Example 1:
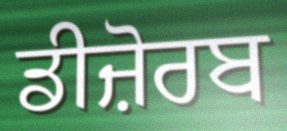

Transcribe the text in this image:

ਡੀਜ਼ੋਰਬ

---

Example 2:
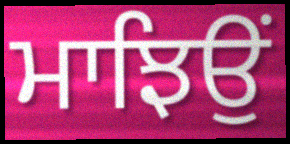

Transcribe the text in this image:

ਮਾਝਿਉਂ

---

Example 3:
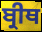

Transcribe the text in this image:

ਬ੍ਰੀਥ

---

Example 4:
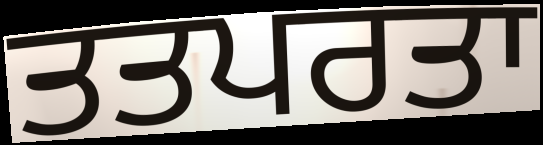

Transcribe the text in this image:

ਤਤਪਰਤਾ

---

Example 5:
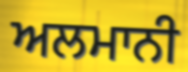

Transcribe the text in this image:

ਅਲਮਾਨੀ